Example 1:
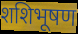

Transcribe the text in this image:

शशिभूषण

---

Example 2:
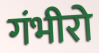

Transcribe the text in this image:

गंभीरो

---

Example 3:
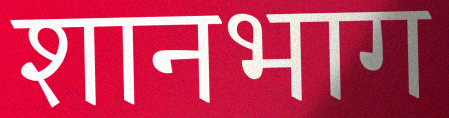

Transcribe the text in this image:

शानभाग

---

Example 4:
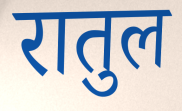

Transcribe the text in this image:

रातुल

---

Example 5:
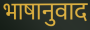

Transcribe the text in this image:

भाषानुवाद